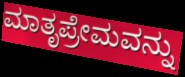
ಮಾತೃಪ್ರೇಮವನ್ನು